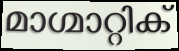
മാഗ്മാറ്റിക്